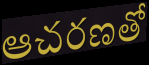
ఆచరణతో